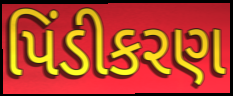
પિંડીકરણ